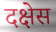
दक्षेस